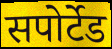
सपोर्टेड